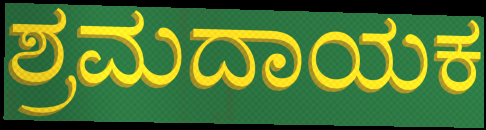
ಶ್ರಮದಾಯಕ